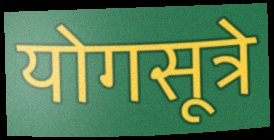
योगसूत्रे